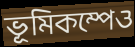
ভূমিকম্পেও